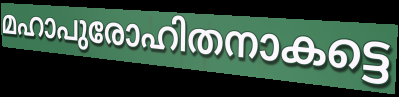
മഹാപുരോഹിതനാകട്ടെ